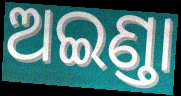
ଅଇଣ୍ଡା